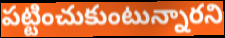
పట్టించుకుంటున్నారని